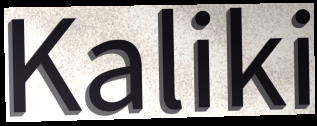
Kaliki